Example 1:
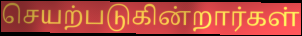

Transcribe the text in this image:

செயற்படுகின்றார்கள்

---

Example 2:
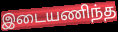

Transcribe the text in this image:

இடையணிந்த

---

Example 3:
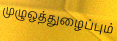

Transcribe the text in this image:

முழுஒத்துழைப்பும்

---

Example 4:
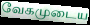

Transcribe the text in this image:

வேகமுடைய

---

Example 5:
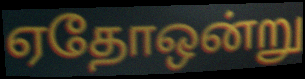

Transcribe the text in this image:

ஏதோஒன்று